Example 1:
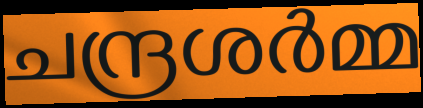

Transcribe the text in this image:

ചന്ദ്രശർമ്മ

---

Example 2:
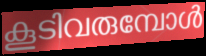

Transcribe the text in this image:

കൂടിവരുമ്പോൾ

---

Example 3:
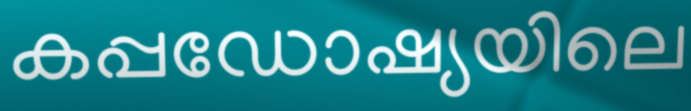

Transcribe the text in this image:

കപ്പഡോഷ്യയിലെ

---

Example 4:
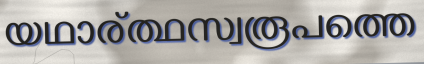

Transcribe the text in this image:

യഥാര്ത്ഥസ്വരൂപത്തെ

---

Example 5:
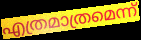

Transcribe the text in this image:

എത്രമാത്രമെന്ന്